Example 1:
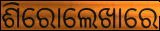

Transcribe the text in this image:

ଶିରୋଲେଖାରେ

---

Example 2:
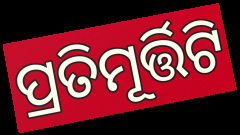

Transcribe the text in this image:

ପ୍ରତିମୂର୍ତ୍ତିଟି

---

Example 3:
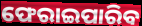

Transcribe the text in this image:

ଫେରାଇପାରିବ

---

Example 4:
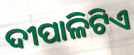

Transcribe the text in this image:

ଦୀପାଳିଟିଏ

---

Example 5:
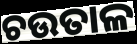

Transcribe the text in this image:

ଚଉତାଳ